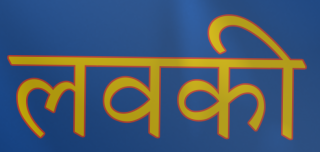
लवकी